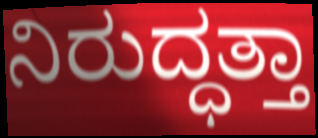
ನಿರುದ್ಧತ್ತಾ